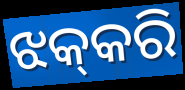
ଝକ୍‌କରି